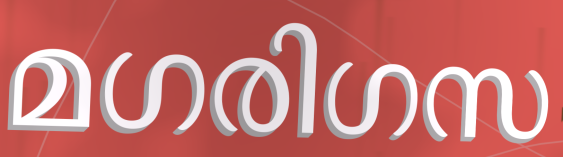
മഗരിഗസ